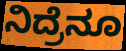
ನಿದ್ರೆನೂ